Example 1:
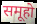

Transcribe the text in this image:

समूहो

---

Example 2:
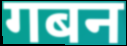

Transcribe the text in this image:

गबन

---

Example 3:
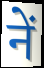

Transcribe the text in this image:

नें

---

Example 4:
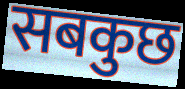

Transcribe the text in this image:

सबकुछ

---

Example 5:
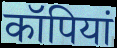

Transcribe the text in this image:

कॉपियां